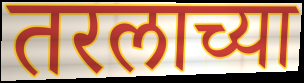
तरलाच्या